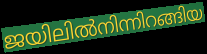
ജയിലിൽനിന്നിറങ്ങിയ